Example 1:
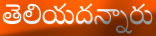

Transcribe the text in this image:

తెలియదన్నారు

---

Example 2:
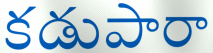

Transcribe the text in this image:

కడుపారా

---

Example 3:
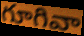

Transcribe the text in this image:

గూగివా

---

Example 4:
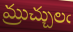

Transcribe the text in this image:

మ్రుచ్చులఁ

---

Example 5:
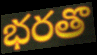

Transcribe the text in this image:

భరతొ